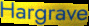
Hargrave